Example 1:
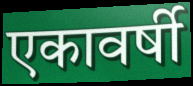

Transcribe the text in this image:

एकावर्षी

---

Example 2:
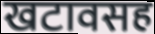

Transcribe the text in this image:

खटावसह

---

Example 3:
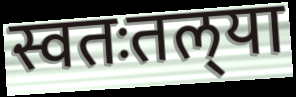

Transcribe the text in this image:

स्वतःतल्या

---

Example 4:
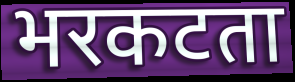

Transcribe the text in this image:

भरकटता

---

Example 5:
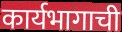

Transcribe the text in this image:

कार्यभागाची